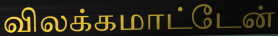
விலக்கமாட்டேன்